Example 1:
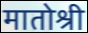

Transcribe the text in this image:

मातोश्री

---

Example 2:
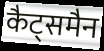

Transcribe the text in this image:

कैट्समैन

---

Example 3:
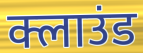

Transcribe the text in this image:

क्लाउंड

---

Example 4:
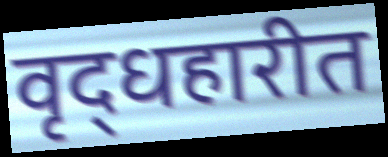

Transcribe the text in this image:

वृद्धहारीत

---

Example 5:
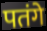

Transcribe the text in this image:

पतंगे